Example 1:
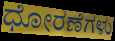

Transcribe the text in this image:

ಧೋರಣೆಗಳು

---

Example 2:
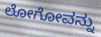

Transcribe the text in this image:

ಲೋಗೋವನ್ನು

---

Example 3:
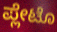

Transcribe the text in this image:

ಪ್ಲೇಟೊ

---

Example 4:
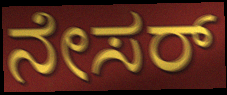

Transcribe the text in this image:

ನೇಸರ್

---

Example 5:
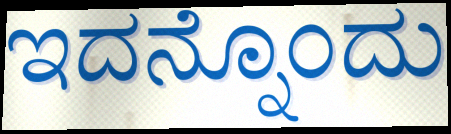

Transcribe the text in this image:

ಇದನ್ನೊಂದು